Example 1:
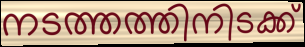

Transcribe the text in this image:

നടത്തത്തിനിടക്ക്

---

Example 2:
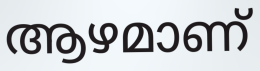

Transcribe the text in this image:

ആഴമാണ്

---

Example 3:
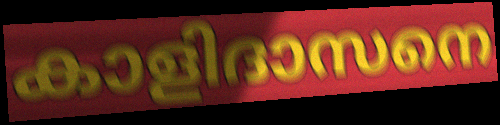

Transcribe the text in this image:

കാളിദാസനെ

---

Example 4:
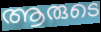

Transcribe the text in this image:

ആരുടെ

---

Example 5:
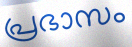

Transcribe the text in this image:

പ്രഭാസം